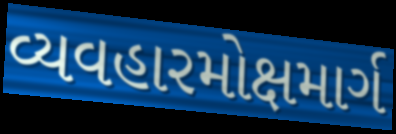
વ્યવહારમોક્ષમાર્ગ